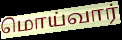
மொய்வார்